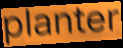
planter